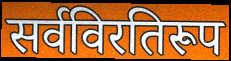
सर्वविरतिरूप